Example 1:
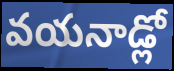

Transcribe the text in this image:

వయనాడ్లో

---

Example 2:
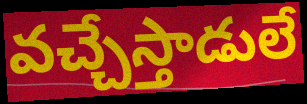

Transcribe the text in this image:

వచ్చేస్తాడులే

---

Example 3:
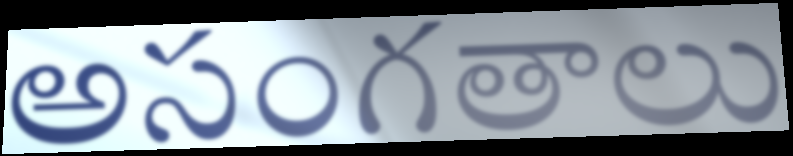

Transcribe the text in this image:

అసంగతాలు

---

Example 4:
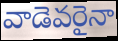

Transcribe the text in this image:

వాడెవరైనా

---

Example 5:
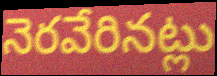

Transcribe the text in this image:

నెరవేరినట్లు